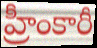
హ్రీంకారీ